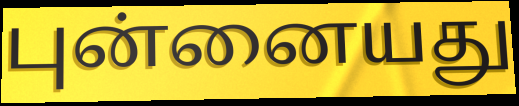
புன்னையது